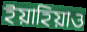
ইয়াহিয়াও